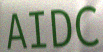
AIDC